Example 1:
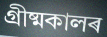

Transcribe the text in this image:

গ্ৰীষ্মকালৰ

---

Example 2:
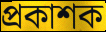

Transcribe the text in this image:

প্ৰকাশক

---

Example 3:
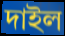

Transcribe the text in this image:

দাইল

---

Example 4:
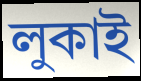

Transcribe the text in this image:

লুকাই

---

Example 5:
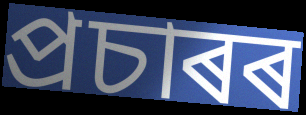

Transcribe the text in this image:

প্ৰচাৰৰ